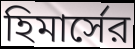
হিমার্সের